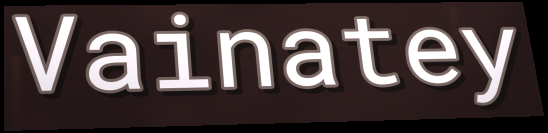
Vainatey